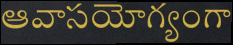
ఆవాసయోగ్యంగా